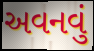
અવનવું